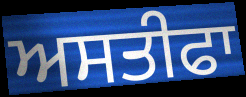
ਅਸਤੀਫਾ